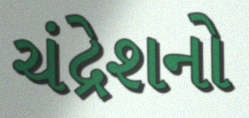
ચંદ્રેશનો